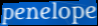
penelope